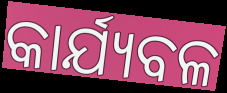
କାର୍ଯ୍ୟବଳ